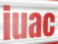
iuac